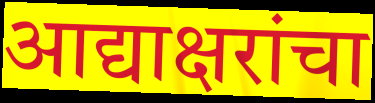
आद्याक्षरांचा